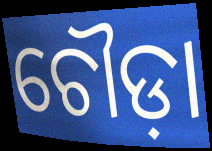
ଚୌଡ଼ା